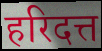
हरिदत्त